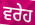
ਵਰੇਹ